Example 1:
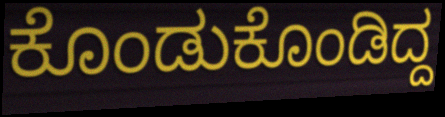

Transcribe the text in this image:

ಕೊಂಡುಕೊಂಡಿದ್ದ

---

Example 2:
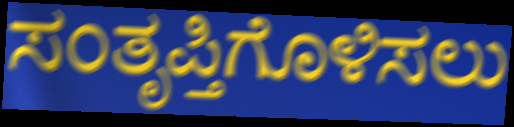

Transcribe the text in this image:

ಸಂತೃಪ್ತಿಗೊಳಿಸಲು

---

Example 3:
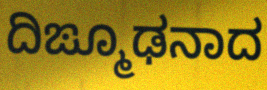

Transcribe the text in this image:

ದಿಙ್ಮೂಢನಾದ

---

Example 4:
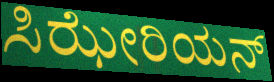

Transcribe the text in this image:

ಸಿಝೇರಿಯನ್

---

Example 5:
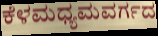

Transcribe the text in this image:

ಕೆಳಮಧ್ಯಮವರ್ಗದ